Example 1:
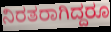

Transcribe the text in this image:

ನಿರತರಾಗಿದ್ದರೂ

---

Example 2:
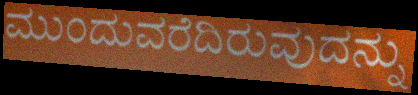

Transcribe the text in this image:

ಮುಂದುವರೆದಿರುವುದನ್ನು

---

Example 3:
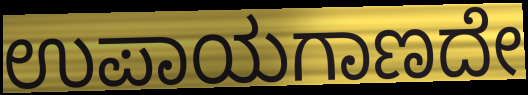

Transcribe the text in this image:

ಉಪಾಯಗಾಣದೇ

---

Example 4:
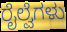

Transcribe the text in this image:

ರೈಲ್ವೆಗಳು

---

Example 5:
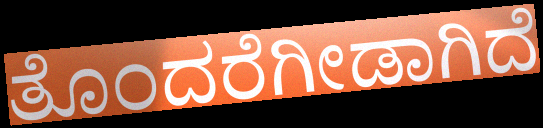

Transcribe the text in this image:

ತೊಂದರೆಗೀಡಾಗಿದೆ